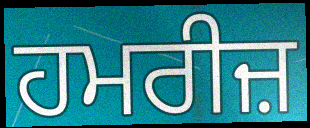
ਹਮਰੀਜ਼